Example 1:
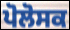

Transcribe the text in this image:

ਪੋਲੋਸਕ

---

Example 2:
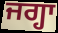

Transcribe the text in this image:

ਜਗ੍ਹਾ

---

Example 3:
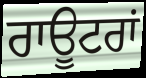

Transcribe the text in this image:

ਰਾਊਟਰਾਂ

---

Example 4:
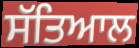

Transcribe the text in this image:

ਸੱਤਿਆਲ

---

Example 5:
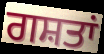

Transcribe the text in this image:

ਗਸ਼ਤਾਂ